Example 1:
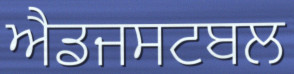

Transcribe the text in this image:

ਐਡਜਸਟਬਲ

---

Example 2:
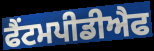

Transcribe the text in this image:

ਫੈਂਟਮਪੀਡੀਐਫ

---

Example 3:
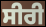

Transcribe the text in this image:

ਸੀਰੀ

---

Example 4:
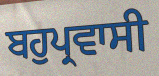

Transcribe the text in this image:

ਬਹੁਪ੍ਰਵਾਸੀ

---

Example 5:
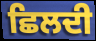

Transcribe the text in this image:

ਛਿਲਦੀ